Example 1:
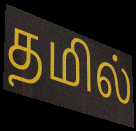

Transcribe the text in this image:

தமில்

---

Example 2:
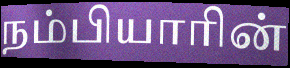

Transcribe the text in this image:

நம்பியாரின்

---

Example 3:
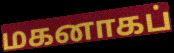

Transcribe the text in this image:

மகனாகப்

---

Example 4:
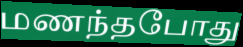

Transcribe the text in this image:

மணந்தபோது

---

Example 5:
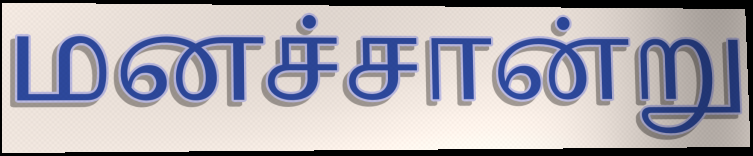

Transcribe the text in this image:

மனச்சான்று